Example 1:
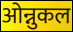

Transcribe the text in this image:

ओन्नुकल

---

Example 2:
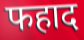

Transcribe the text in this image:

फहाद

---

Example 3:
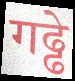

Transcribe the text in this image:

गढ्ढे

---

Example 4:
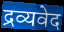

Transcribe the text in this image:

द्रव्यवेद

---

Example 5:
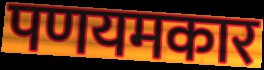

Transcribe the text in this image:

पणयमकार